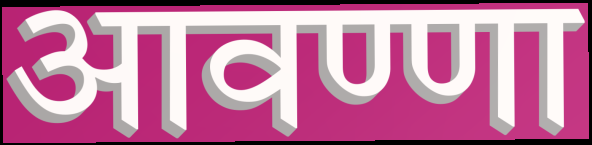
आवण्णा